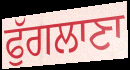
ਫੁੱਗਲਾਣਾ